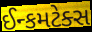
ઈન્કમટેક્સ